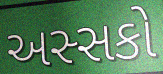
અસ્સકો